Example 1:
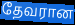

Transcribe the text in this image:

தேவரான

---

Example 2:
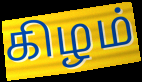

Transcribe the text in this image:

கிழம்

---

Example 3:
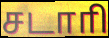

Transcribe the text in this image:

சடாரி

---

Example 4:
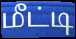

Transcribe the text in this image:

மீட்டி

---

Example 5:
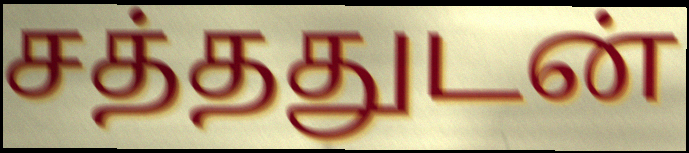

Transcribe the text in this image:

சத்ததுடன்